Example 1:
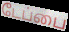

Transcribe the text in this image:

டேப்பை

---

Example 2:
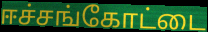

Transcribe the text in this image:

ஈச்சங்கோட்டை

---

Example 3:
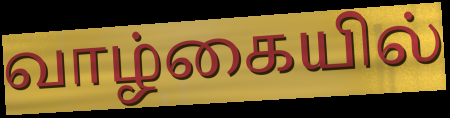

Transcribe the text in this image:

வாழ்கையில்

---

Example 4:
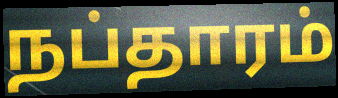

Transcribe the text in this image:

நப்தாரம்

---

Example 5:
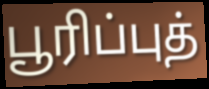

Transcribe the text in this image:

பூரிப்புத்